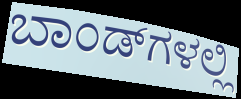
ಬಾಂಡ್‌ಗಳಲ್ಲಿ